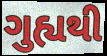
ગુહ્યથી